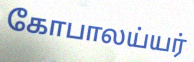
கோபாலய்யர்